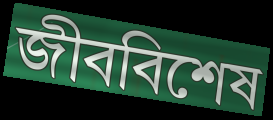
জীববিশেষ